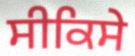
ਸੀਕਿਸੇ